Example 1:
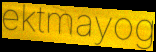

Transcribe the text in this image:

ektmayog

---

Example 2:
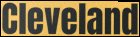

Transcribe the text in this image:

Cleveland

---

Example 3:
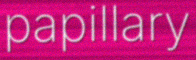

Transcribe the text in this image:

papillary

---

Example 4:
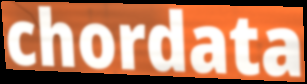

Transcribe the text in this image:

chordata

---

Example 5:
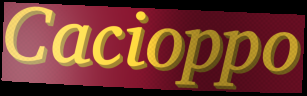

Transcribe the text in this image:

Cacioppo